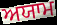
ਅਯਾਮ